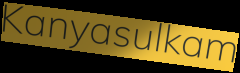
Kanyasulkam